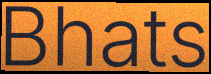
Bhats